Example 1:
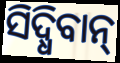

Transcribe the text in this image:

ସିଦ୍ଧିବାନ୍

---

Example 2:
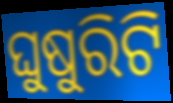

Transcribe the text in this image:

ଘୁଷୁରିଟି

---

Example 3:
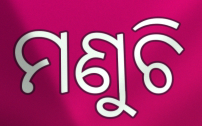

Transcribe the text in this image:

ମଣୁଚି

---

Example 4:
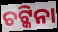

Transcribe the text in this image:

ଚଟ୍କିନା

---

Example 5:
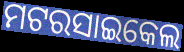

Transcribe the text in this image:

ମଟରସାଇକେଲ